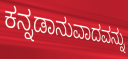
ಕನ್ನಡಾನುವಾದವನ್ನು